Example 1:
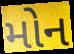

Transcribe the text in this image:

મોન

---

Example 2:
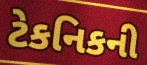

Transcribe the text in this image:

ટેકનિકની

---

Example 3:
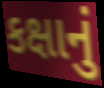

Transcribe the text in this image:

કક્ષાનું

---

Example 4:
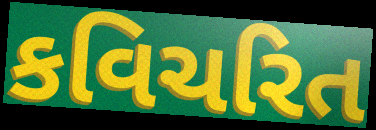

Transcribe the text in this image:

કવિચરિત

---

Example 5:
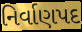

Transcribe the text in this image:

નિર્વાણપદ